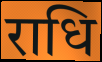
राधि